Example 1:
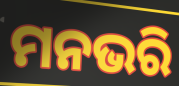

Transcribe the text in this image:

ମନଭରି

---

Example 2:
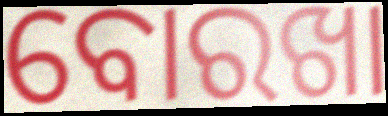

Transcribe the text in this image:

ବୋରଖା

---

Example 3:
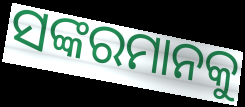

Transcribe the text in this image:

ସଙ୍କରମାନକୁ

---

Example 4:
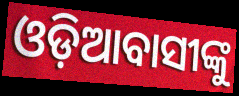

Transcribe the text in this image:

ଓଡ଼ିଆବାସୀଙ୍କୁ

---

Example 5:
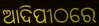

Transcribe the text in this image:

ଆଦିପୀଠରେ